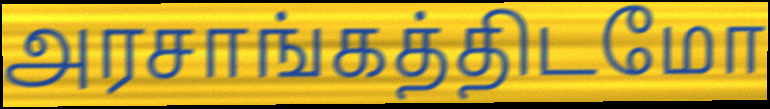
அரசாங்கத்திடமோ